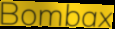
Bombax